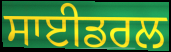
ਸਾਈਡਰਲ